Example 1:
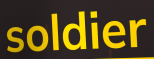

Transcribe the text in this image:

soldier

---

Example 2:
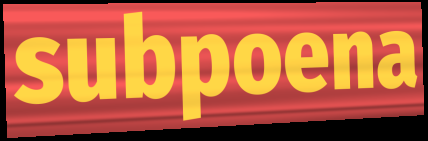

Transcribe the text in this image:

subpoena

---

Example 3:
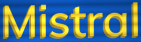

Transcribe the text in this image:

Mistral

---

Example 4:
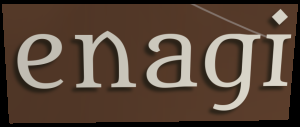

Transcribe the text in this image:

enagi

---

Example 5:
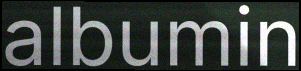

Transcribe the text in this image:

albumin